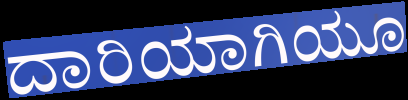
ದಾರಿಯಾಗಿಯೂ